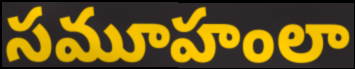
సమూహంలా